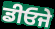
ਡੀਓਜੇ